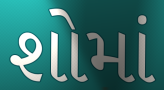
શોમાં